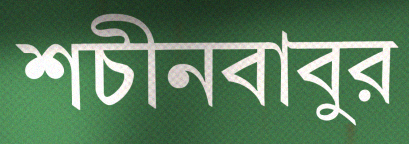
শচীনবাবুর